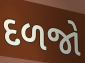
દળજો